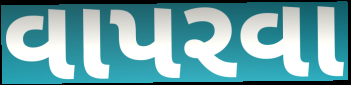
વાપરવા